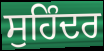
ਸੁਹਿੰਦਰ